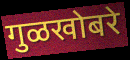
गुळखोबरे